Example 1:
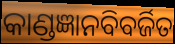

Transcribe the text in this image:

କାଣ୍ଡଜ୍ଞାନବିବର୍ଜିତ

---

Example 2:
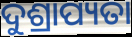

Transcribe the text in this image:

ଦୁଶ୍ରାପ୍ୟତା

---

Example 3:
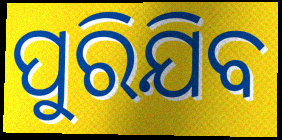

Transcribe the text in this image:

ପୁରିଯିବ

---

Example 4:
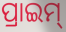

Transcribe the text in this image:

ପ୍ରାଇମ୍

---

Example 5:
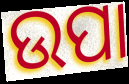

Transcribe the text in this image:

ଉପା